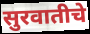
सुरवातीचे